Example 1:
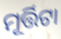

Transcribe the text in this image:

ମୂର୍ତ୍ତିଟା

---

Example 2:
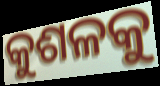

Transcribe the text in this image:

କୁଶଳକୁ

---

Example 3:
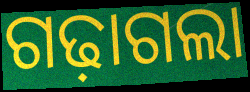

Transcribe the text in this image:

ଗଢ଼ାଗଲା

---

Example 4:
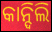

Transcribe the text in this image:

କାନ୍ଦିଲି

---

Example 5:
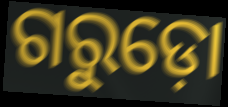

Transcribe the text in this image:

ଗରୁଡ଼ୋ